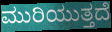
ಮುರಿಯುತ್ತದೆ